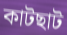
কাটছাট